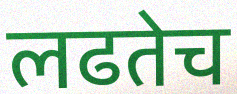
लढतेच